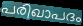
പരിഖാപദം